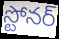
స్టోనర్